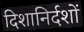
दिशानिर्दशों